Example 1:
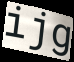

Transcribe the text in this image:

ijg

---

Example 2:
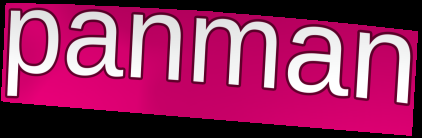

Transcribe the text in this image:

panman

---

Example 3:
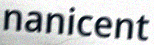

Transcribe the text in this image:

nanicent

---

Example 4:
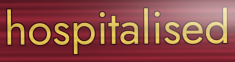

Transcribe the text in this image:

hospitalised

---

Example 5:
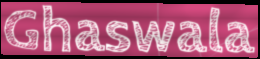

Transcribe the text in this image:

Ghaswala